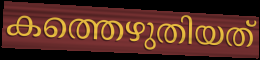
കത്തെഴുതിയത്